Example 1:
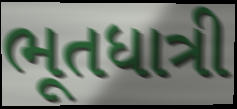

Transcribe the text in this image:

ભૂતધાત્રી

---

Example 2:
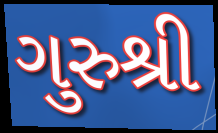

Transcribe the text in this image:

ગુરુશ્રી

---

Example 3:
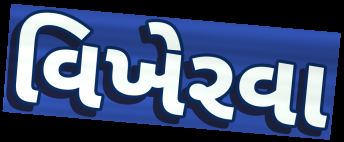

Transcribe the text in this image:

વિખેરવા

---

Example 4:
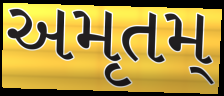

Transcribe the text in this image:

અમૃતમ્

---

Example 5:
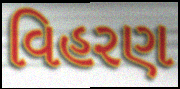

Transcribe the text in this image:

વિહરણ